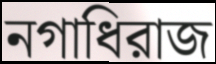
নগাধিরাজ